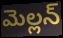
మెల్లన్